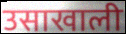
उसाखाली